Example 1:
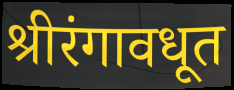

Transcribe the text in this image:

श्रीरंगावधूत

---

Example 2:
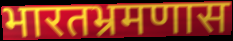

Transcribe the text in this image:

भारतभ्रमणास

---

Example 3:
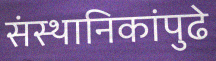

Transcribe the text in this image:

संस्थानिकांपुढे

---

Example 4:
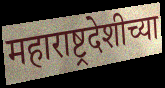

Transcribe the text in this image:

महाराष्ट्रदेशीच्या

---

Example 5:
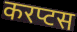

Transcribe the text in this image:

करप्टस